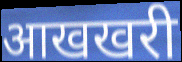
आखखरी